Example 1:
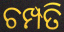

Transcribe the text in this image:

ଚମ୍ପତି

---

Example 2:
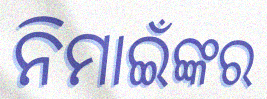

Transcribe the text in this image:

ନିମାଇଁଙ୍କର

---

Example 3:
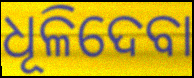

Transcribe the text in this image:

ଧୂଳିଦେବା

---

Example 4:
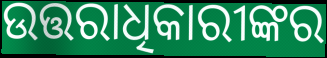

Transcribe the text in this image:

ଉତ୍ତରାଧିକାରୀଙ୍କର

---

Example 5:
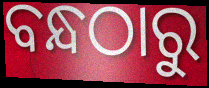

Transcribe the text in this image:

ବନ୍ଧଠାରୁ